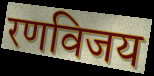
रणविजय